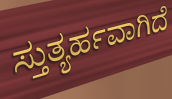
ಸ್ತುತ್ಯರ್ಹವಾಗಿದೆ